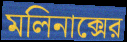
মলিনাক্সের